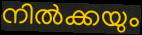
നിൽക്കയും